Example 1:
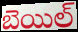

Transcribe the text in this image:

బెయిల్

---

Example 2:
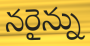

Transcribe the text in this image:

నరైన్ను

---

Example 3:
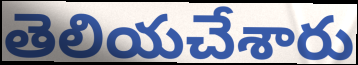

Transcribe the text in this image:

తెలియచేశారు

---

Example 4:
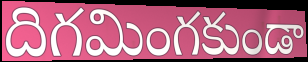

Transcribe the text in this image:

దిగమింగకుండా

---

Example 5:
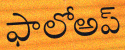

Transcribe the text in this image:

ఫాలోఅప్